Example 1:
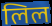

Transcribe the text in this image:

लिल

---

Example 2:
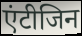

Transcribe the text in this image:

एंटीजिन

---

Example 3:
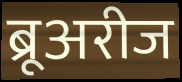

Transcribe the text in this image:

ब्रूअरीज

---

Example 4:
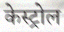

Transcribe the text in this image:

केस्ट्रोल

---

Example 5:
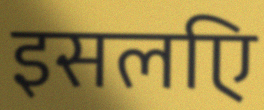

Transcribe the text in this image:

इसलएि